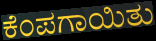
ಕೆಂಪಗಾಯಿತು